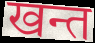
खन्त